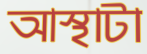
আস্থাটা